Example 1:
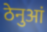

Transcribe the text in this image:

ठेनुआं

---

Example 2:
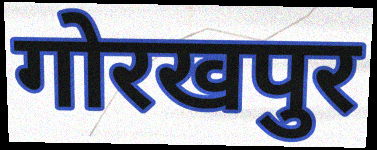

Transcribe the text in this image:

गोरखपुर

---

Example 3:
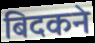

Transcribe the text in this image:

बिदकने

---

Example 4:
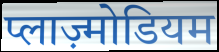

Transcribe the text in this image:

प्लाज़्मोडियम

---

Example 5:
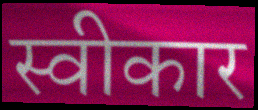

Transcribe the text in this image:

स्वीकार